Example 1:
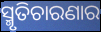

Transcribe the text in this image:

ସ୍ମୃତିଚାରଣାର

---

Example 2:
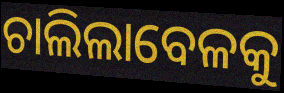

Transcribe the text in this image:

ଚାଲିଲାବେଳକୁ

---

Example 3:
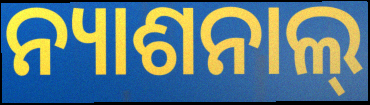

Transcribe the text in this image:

ନ୍ୟାଶନାଲ୍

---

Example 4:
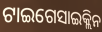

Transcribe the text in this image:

ଟାଇଗେସାଇକ୍ଲିନ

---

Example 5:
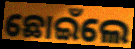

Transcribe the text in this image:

ଛୋଇଁଲେ